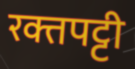
रक्तपट्टी